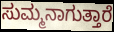
ಸುಮ್ಮನಾಗುತ್ತಾರೆ